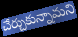
చేర్చుకున్నామని